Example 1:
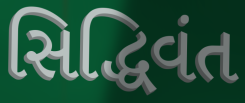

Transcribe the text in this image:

સિદ્ધિવંત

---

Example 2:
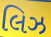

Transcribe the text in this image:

લિઝ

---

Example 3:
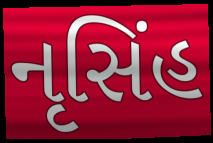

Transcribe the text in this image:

નૃસિંહ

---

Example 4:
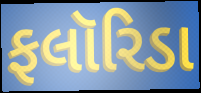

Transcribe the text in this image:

ફલૉરિડા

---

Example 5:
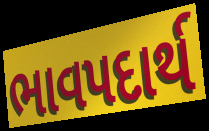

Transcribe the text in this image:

ભાવપદાર્થ